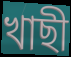
খাছী